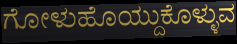
ಗೋಳುಹೊಯ್ದುಕೊಳ್ಳುವ